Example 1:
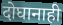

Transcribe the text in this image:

दोघानाही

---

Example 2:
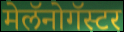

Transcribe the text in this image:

मेलॅनोगॅस्टर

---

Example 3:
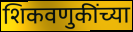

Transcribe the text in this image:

शिकवणुकींच्या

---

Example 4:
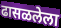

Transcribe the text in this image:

ढासळलेला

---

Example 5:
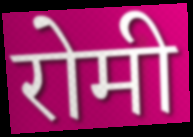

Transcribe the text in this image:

रोमी